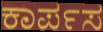
ಕಾರ್ಪಸ